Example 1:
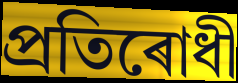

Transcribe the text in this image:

প্ৰতিৰোধী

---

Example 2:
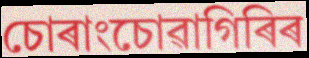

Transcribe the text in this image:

চোৰাংচোৱাগিৰিৰ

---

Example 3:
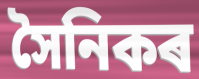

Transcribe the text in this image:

সৈনিকৰ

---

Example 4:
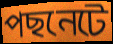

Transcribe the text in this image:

পছনেটে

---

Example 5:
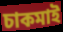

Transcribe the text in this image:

চাকমাই